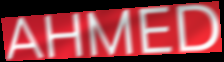
AHMED